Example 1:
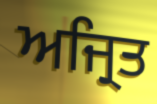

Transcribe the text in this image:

ਅਜ੍ਰਿਤ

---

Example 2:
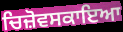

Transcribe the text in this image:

ਚਿਜ਼ੋਵਸਕਾਇਆ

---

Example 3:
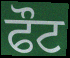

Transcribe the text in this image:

ਫੌਟ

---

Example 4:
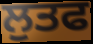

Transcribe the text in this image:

ਲੁਤਫ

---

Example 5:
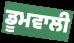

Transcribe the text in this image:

ਡੂਮਵਾਲੀ